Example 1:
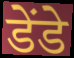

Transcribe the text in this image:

डेंडे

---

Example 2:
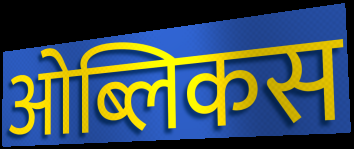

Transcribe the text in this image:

ओब्लिकस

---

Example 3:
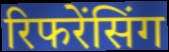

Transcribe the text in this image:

रिफरेंसिंग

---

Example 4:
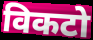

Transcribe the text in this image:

विकटो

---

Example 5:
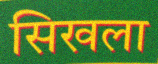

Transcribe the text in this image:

सिखला